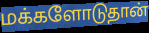
மக்களோடுதான்